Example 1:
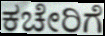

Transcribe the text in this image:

ಕಚೇರಿಗೆ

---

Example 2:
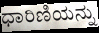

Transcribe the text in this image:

ಧಾರಿಣಿಯನ್ನು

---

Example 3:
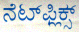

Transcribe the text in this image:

ನೆಟ್‌ಫ್ಲಿಕ್ಸ್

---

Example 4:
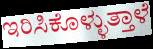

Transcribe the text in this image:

ಇರಿಸಿಕೊಳ್ಳುತ್ತಾಳೆ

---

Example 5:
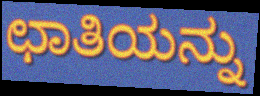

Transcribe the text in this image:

ಛಾತಿಯನ್ನು